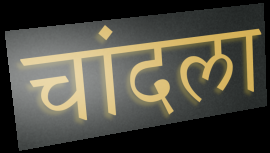
चांदला